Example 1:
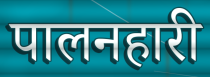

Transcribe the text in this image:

पालनहारी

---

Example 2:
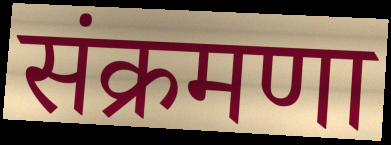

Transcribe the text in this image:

संक्रमणा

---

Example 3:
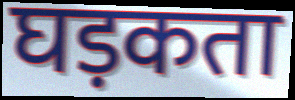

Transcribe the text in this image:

घड़कता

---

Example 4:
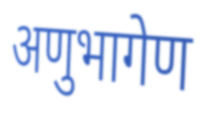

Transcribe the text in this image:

अणुभागेण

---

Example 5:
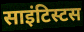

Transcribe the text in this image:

साइंटिस्टस